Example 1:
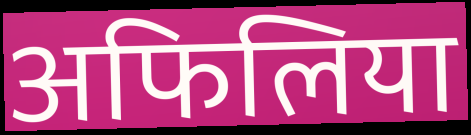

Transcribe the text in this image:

अफिलिया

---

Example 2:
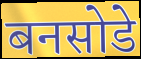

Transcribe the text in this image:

बनसोडे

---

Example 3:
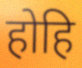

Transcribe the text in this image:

होहि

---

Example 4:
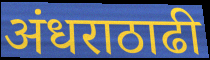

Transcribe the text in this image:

अंधराठाढी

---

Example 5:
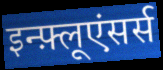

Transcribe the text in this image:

इन्फ़्लूएंसर्स